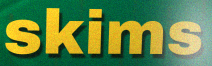
skims